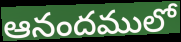
ఆనందములో